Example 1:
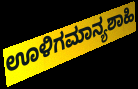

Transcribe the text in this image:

ಊಳಿಗಮಾನ್ಯಶಾಹಿ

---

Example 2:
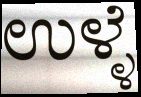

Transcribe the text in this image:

ಉಳ್ಳೆ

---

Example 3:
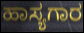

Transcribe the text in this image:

ಹಾಸ್ಯಗಾರ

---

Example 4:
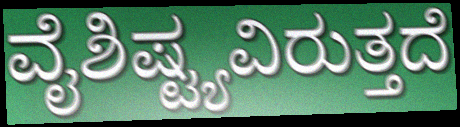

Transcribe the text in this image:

ವೈಶಿಷ್ಟ್ಯವಿರುತ್ತದೆ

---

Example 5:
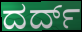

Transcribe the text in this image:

ದರ್ದ್